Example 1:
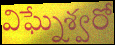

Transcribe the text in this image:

విఘ్నేశ్వరో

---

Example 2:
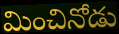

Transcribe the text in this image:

మించినోడు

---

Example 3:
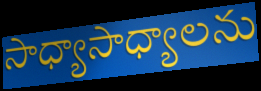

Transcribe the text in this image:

సాధ్యాసాధ్యాలను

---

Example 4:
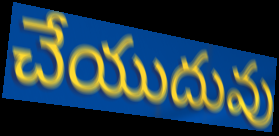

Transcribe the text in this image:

చేయుదువు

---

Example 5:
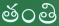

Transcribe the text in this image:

తంతి